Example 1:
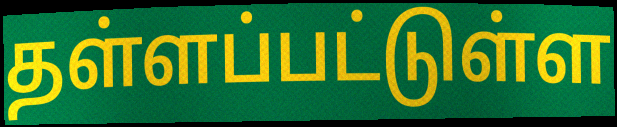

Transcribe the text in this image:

தள்ளப்பட்டுள்ள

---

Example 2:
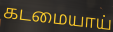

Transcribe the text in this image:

கடமையாய்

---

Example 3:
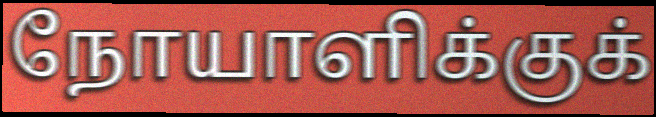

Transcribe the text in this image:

நோயாளிக்குக்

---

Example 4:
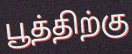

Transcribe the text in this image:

பூத்திற்கு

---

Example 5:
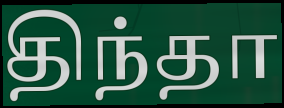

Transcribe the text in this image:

திந்தா